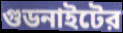
গুডনাইটের